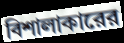
বিশালাকারের